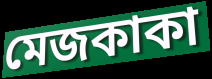
মেজকাকা